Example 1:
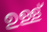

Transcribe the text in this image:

ഉള്ള്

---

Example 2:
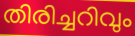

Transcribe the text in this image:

തിരിച്ചറിവും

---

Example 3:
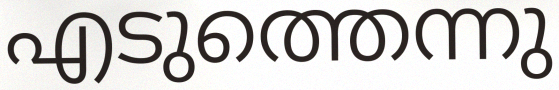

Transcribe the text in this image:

എടുത്തെന്നു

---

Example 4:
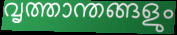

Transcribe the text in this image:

വൃത്താന്തങ്ങളും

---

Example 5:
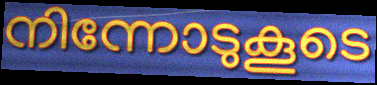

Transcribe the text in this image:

നിന്നോടുകൂടെ